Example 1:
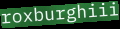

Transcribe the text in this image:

roxburghiii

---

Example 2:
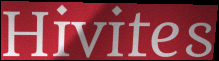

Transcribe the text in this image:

Hivites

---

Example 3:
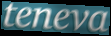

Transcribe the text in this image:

teneva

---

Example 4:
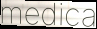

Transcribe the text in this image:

medica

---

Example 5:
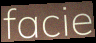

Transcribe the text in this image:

facie